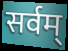
सर्वम्